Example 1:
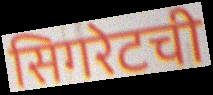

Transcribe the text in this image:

सिगरेटची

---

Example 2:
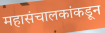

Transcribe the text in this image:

महासंचालकांकडून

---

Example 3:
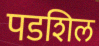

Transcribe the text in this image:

पडशिल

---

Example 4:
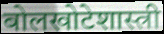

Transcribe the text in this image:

बोलखोटेशास्त्री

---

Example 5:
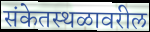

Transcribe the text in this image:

संकेतस्थळावरील